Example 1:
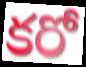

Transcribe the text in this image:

కరో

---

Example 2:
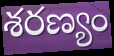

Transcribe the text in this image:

శరణ్యం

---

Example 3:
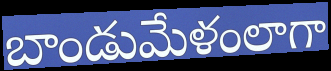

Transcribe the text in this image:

బాండుమేళంలాగా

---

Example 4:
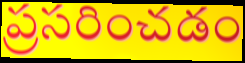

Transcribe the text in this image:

ప్రసరించడం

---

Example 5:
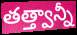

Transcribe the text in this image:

తత్త్వాన్నీ